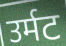
उर्मट